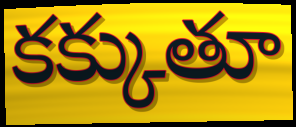
కక్కుతూ